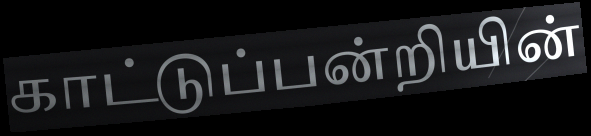
காட்டுப்பன்றியின்